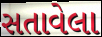
સતાવેલા